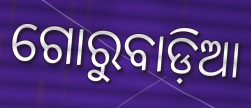
ଗୋରୁବାଡ଼ିଆ